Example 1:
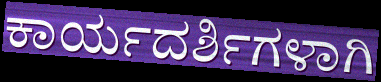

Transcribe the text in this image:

ಕಾರ್ಯದರ್ಶಿಗಳಾಗಿ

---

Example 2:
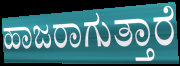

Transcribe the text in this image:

ಹಾಜರಾಗುತ್ತಾರೆ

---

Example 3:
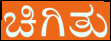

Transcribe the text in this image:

ಚಿಗಿತು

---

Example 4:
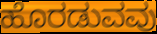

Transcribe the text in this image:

ಹೊರಡುವವು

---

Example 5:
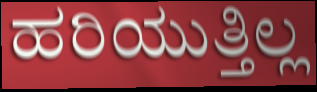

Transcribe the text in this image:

ಹರಿಯುತ್ತಿಲ್ಲ